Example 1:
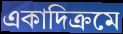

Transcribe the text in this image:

একাদিক্ৰমে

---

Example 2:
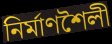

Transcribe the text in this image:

নিৰ্মাণশৈলী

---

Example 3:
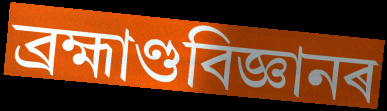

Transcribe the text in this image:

ব্ৰহ্মাণ্ডবিজ্ঞানৰ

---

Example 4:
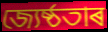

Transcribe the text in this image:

জ্যেষ্ঠতাৰ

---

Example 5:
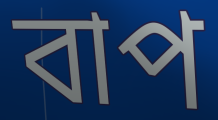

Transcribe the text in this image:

বাপ